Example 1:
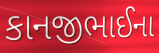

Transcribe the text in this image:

કાનજીભાઈના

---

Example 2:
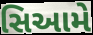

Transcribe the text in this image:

સિઆમે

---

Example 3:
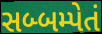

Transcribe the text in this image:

સબ્બમ્પેતં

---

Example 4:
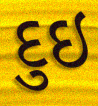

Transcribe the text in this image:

દુઇ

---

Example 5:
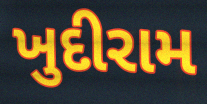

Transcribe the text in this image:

ખુદીરામ